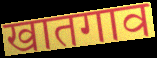
खातगाव